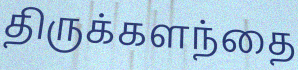
திருக்களந்தை